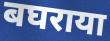
बघराया